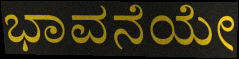
ಭಾವನೆಯೇ